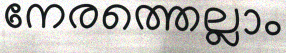
നേരത്തെല്ലാം